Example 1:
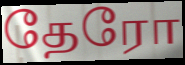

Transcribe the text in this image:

தேரோ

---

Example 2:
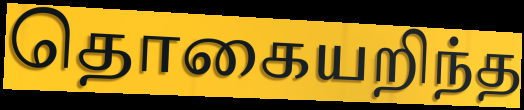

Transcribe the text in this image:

தொகையறிந்த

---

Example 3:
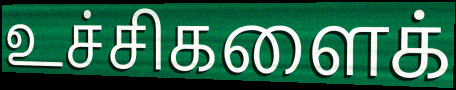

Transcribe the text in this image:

உச்சிகளைக்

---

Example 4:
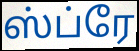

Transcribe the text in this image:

ஸ்ப்ரே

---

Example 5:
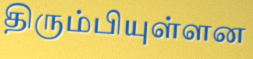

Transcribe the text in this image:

திரும்பியுள்ளன